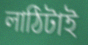
লাঠিটাই